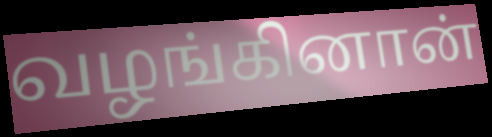
வழங்கினான்